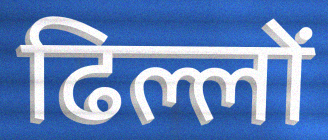
ढिल्लों